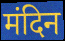
मंदिन